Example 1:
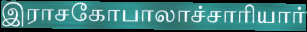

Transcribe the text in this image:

இராசகோபாலாச்சாரியார்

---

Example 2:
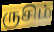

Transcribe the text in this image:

ருசிம்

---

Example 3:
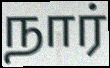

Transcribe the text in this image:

நார்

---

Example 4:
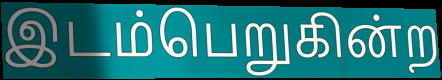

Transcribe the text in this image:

இடம்பெறுகின்ற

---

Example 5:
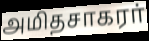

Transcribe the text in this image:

அமிதசாகரர்